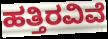
ಹತ್ತಿರವಿವೆ